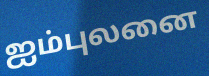
ஐம்புலனை